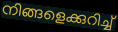
നിങ്ങളെക്കുറിച്ച്